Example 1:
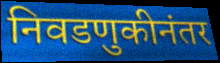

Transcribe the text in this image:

निवडणुकीनंतर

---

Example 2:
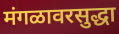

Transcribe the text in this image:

मंगळावरसुद्धा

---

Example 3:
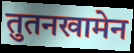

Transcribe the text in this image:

तुतनखामेन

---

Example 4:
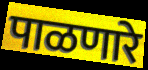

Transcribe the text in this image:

पाळणारे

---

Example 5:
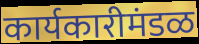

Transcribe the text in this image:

कार्यकारीमंडळ